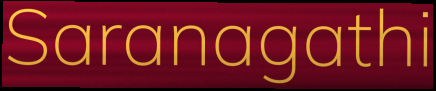
Saranagathi